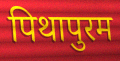
पिथापुरम